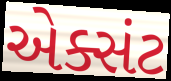
એક્સંટ